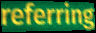
referring